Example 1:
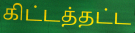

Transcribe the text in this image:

கிட்டத்தட்ட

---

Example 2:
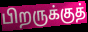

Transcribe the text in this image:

பிறருக்குத்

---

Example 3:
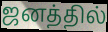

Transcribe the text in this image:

ஜனத்தில்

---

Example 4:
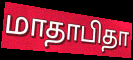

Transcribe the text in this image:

மாதாபிதா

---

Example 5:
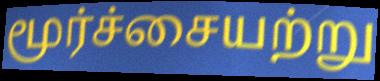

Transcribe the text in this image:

மூர்ச்சையற்று